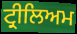
ਟ੍ਰੀਲਿਅਮ